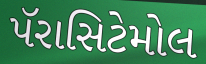
પૅરાસિટેમોલ